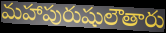
మహాపురుషులౌతారు